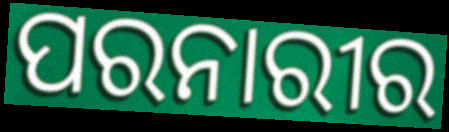
ପରନାରୀର